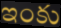
ఇంకు